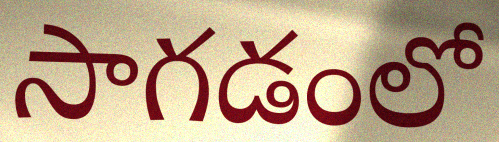
సాగడంలో